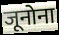
जूनोना